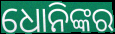
ଧୋନିଙ୍କର